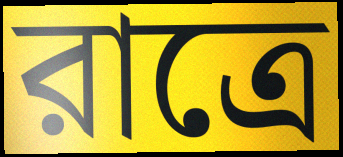
রাত্রে